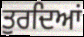
ਤੁਰਦਿਆਂ